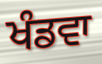
ਖੰਡਵਾ